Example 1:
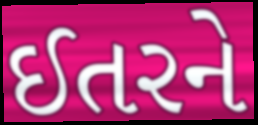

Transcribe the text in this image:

ઈતરને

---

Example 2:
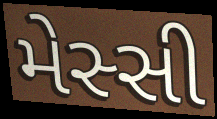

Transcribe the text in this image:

મેસ્સી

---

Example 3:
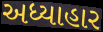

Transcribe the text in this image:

અધ્યાહાર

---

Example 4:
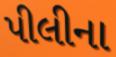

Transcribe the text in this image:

પીલીના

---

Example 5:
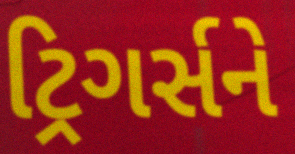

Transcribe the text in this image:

ટ્રિગર્સને